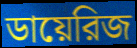
ডায়েরিজ